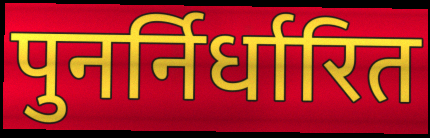
पुनर्निर्धारित